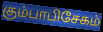
கும்பாபிசேகம்